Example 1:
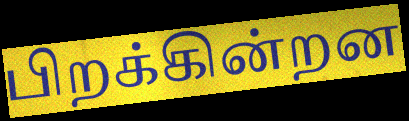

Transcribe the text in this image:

பிறக்கின்றன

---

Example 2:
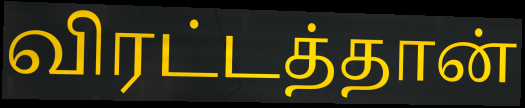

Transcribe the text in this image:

விரட்டத்தான்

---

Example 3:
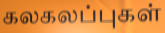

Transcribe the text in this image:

கலகலப்புகள்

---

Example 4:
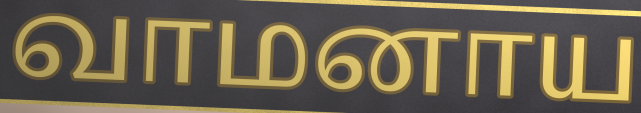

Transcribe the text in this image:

வாமனாய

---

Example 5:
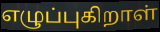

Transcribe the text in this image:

எழுப்புகிறாள்